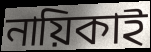
নায়িকাই